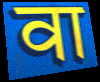
वा